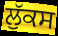
ਲੁੱਕਸ